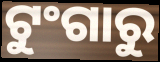
ଟୁଂଗାରୁ